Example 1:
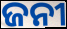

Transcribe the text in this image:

ଜନୀ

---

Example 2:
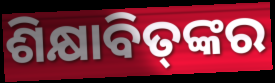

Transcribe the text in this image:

ଶିକ୍ଷାବିତ୍‌ଙ୍କର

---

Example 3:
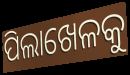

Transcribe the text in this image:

ପିଲାଖେଳକୁ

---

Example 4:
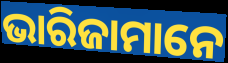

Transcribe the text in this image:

ଭାରିଜାମାନେ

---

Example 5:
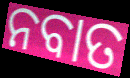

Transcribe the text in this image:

ନବାତ